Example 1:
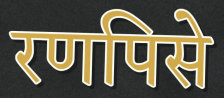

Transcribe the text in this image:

रणपिसे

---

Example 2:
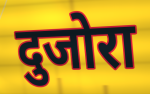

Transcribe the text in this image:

दुजोरा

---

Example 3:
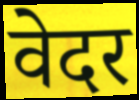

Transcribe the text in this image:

वेदर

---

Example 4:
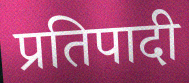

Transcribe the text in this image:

प्रतिपादी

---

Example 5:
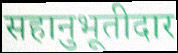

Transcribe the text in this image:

सहानुभूतीदार